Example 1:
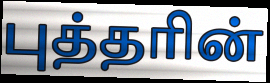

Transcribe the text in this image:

புத்தரின்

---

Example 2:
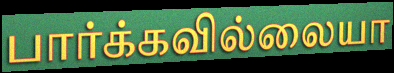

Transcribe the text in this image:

பார்க்கவில்லையா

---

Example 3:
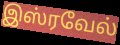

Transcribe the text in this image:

இஸ்ரவேல்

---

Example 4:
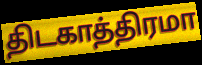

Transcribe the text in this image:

திடகாத்திரமா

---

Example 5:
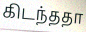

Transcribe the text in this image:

கிடந்ததா